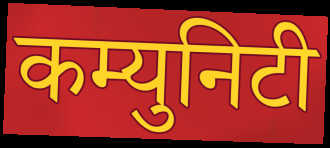
कम्युनिटी